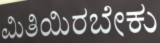
ಮಿತಿಯಿರಬೇಕು